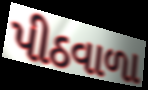
પીઠવાળા